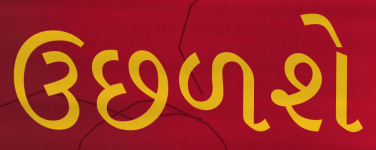
ઉછળશે